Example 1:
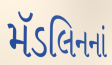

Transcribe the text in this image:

મૅડલિનનાં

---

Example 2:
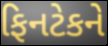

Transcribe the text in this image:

ફિનટેકને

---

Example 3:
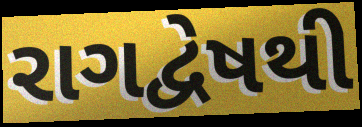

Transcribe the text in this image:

રાગદ્વેષથી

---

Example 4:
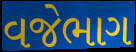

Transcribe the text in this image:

વજેભાગ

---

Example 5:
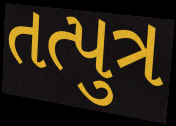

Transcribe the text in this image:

તત્પુત્ર